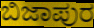
ಬಿಜಾಪುರ